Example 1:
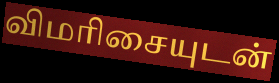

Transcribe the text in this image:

விமரிசையுடன்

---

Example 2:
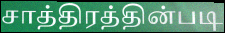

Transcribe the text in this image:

சாத்திரத்தின்படி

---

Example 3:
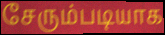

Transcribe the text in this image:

சேரும்படியாக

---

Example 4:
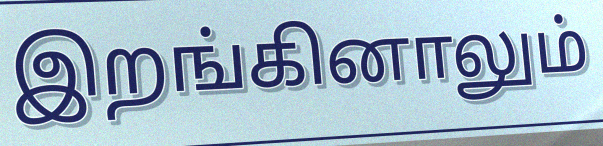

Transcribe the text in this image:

இறங்கினாலும்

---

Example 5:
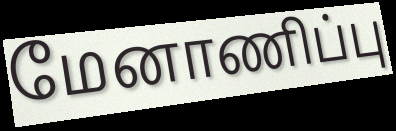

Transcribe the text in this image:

மேனாணிப்பு